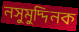
নসুমুদ্দিনক